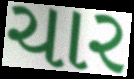
ચાર